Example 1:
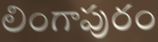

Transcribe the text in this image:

లింగాపురం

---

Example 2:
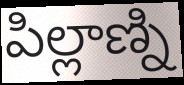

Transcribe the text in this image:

పిల్లాణ్ని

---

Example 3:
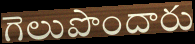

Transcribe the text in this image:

గెలుపొందారు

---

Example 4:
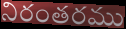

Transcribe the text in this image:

నిరంతరము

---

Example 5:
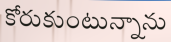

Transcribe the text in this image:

కోరుకుంటున్నాను